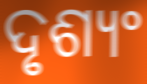
ଦୃଶ୍ୟଂ